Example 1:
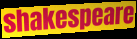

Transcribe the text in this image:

shakespeare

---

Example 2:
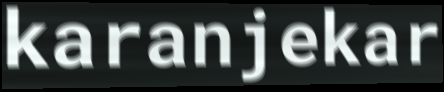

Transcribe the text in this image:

karanjekar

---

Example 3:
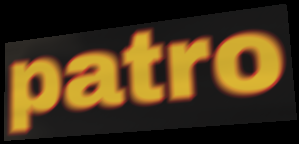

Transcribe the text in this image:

patro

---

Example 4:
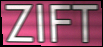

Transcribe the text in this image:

ZIFT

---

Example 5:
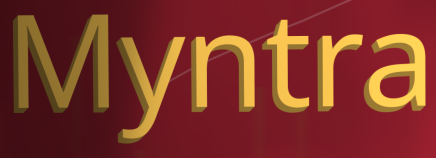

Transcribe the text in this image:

Myntra